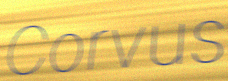
Corvus